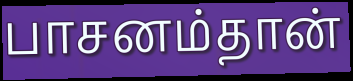
பாசனம்தான்